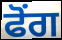
ਫੋਂਗ